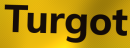
Turgot